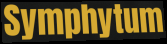
Symphytum